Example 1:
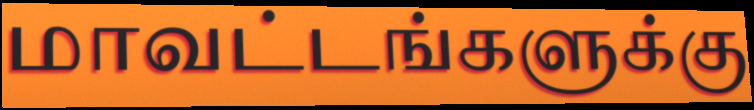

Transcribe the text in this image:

மாவட்டங்களுக்கு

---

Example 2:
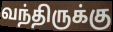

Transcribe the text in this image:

வந்திருக்கு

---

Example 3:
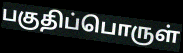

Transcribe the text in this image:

பகுதிப்பொருள்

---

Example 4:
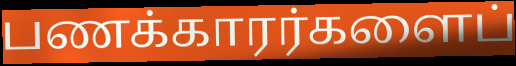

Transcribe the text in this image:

பணக்காரர்களைப்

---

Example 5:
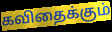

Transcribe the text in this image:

கவிதைக்கும்